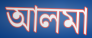
আলমা